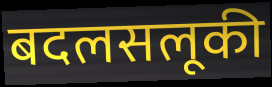
बदलसलूकी